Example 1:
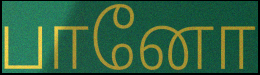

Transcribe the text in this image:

பானோ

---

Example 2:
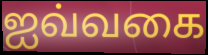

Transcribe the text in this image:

ஐவ்வகை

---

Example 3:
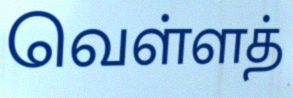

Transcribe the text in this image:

வெள்ளத்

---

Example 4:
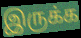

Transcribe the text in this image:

இருக்க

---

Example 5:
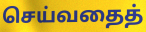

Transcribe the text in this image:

செய்வதைத்